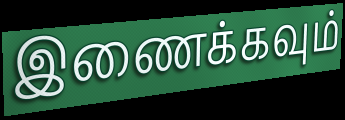
இணைக்கவும்